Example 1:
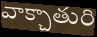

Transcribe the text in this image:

వాక్చాతురి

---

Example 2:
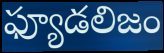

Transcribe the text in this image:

ఫ్యూడలిజం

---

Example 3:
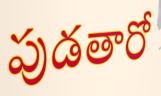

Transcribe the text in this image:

పుడతారో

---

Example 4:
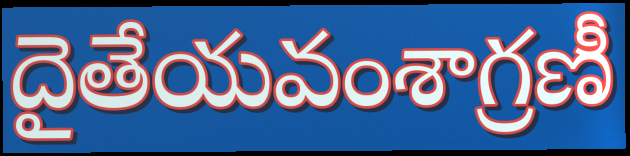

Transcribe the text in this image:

దైతేయవంశాగ్రణీ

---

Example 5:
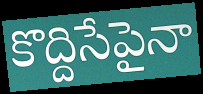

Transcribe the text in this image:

కొద్దిసేపైనా